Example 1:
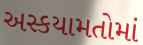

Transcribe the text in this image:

અસ્કયામતોમાં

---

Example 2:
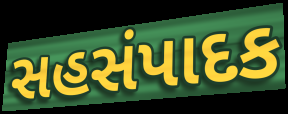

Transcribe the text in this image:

સહસંપાદક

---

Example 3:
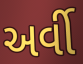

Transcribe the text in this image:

અર્વી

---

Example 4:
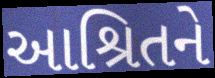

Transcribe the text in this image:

આશ્રિતને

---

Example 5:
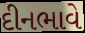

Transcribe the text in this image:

દીનભાવે